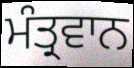
ਮੰਤ੍ਰਵਾਨ